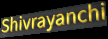
Shivrayanchi